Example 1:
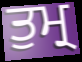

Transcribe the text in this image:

ਤੁਮ੍ਰ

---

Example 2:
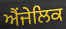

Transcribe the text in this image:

ਐਂਜੇਲਿਕ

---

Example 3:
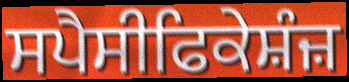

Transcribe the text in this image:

ਸਪੈਸੀਫਿਕੇਸ਼ੰਜ਼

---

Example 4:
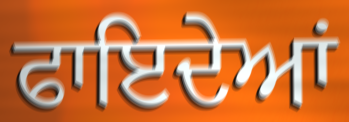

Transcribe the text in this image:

ਫਾਇਦੇਆਂ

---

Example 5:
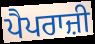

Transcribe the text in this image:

ਪੈਪਰਾਜ਼ੀ